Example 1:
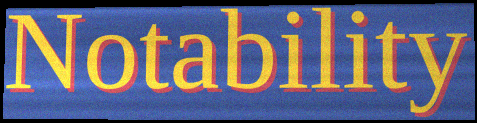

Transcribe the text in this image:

Notability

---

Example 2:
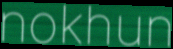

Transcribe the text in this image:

nokhun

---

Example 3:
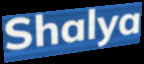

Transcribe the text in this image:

Shalya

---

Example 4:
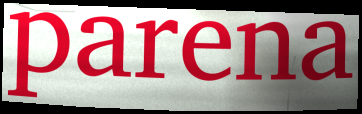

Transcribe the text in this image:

parena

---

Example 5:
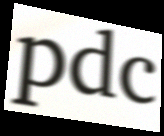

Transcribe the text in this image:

pdc